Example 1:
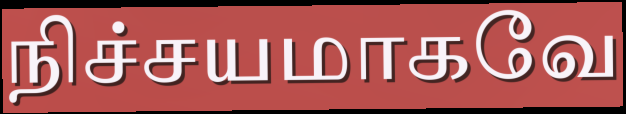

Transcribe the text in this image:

நிச்சயமாகவே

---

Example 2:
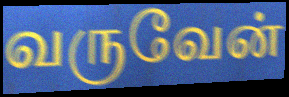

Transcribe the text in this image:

வருவேன்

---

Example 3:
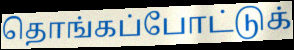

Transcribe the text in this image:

தொங்கப்போட்டுக்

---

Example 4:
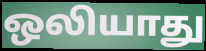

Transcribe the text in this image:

ஒலியாது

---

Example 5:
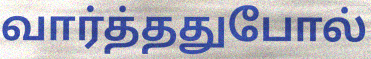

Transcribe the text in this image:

வார்த்ததுபோல்